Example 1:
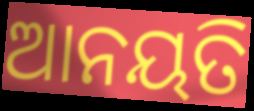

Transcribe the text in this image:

ଆନୟତି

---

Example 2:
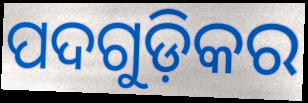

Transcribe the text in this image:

ପଦଗୁଡ଼ିକର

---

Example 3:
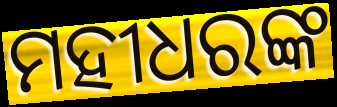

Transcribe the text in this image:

ମହୀଧରଙ୍କ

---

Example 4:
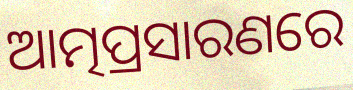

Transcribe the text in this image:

ଆତ୍ମପ୍ରସାରଣରେ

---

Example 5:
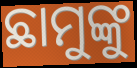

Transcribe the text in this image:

ଛାମୁଙ୍କୁ